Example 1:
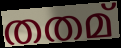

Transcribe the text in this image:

തതമ്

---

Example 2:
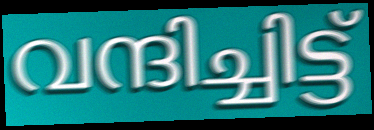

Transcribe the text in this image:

വന്ദിച്ചിട്ട്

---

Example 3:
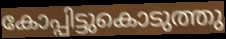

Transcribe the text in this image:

കോപ്പിട്ടുകൊടുത്തു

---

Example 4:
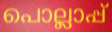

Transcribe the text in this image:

പൊല്ലാപ്പ്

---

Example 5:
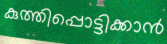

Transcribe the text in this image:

കുത്തിപ്പൊട്ടിക്കാൻ